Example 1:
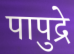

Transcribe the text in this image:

पापुद्रे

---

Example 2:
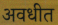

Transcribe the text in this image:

अवधीत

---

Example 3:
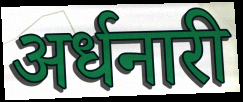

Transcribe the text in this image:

अर्धनारी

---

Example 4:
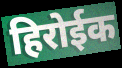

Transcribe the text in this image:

हिरोईक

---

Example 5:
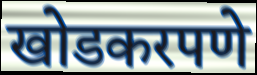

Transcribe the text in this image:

खोडकरपणे